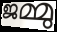
ജമ്മു